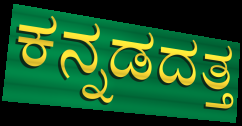
ಕನ್ನಡದತ್ತ